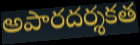
అపారదర్శకత